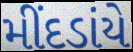
મીંદડાંયે